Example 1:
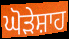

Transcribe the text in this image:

ਘੋੜੇਸ਼ਾਹ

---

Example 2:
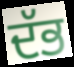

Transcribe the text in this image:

ਦੱਭ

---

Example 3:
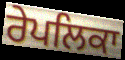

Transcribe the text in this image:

ਰੇਪਲਿਕਾ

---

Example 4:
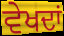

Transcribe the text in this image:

ਵੇਖਦਾਂ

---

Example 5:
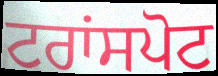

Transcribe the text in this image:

ਟਰਾਂਸਪੋਟ